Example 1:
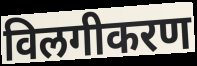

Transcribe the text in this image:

विलगीकरण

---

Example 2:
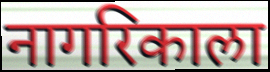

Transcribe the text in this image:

नागरिकाला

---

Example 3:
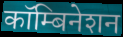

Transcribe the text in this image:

कॉम्बिनेशन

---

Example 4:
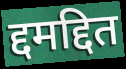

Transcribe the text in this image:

द्दमद्दित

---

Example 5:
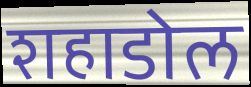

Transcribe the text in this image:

शहाडोल